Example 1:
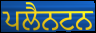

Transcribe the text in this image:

ਪਲੈਨਟਨ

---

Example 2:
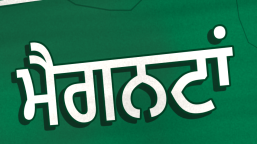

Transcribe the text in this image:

ਮੈਗਨਟਾਂ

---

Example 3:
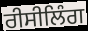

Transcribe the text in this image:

ਰੀਸੀਲਿੰਗ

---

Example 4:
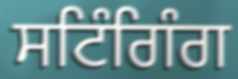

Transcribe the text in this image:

ਸਟਿੰਗਿੰਗ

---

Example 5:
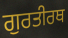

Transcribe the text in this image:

ਗੁਰਤੀਰਥ